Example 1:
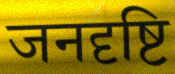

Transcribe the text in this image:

जनदृष्टि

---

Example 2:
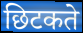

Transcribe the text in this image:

छिटकते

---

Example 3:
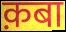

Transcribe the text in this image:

क़बा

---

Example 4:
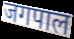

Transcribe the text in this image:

जगपाल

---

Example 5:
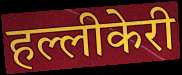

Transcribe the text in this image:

हल्लीकेरी